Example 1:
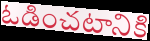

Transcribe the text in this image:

ఓడించటానికి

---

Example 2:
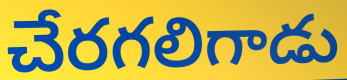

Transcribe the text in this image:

చేరగలిగాడు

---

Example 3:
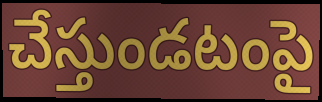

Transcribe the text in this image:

చేస్తుండటంపై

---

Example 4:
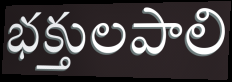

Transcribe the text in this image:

భక్తులపాలి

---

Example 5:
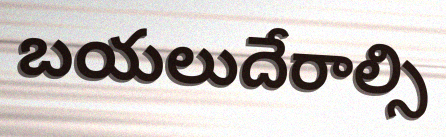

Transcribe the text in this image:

బయలుదేరాల్సి